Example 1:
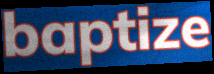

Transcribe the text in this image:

baptize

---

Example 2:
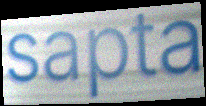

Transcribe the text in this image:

sapta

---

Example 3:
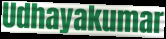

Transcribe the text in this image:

Udhayakumar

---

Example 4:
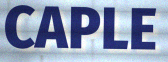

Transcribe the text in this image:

CAPLE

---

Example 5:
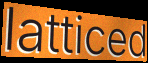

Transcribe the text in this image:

latticed